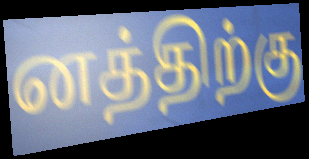
னத்திற்கு